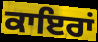
ਕਾਇਰਾਂ